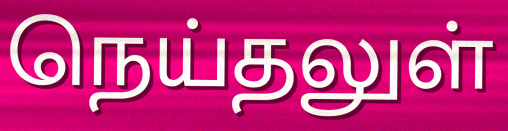
நெய்தலுள்